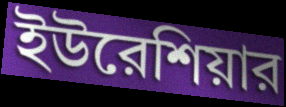
ইউরেশিয়ার